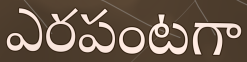
ఎరపంటగా